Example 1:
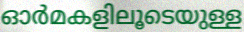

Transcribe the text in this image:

ഓർമകളിലൂടെയുള്ള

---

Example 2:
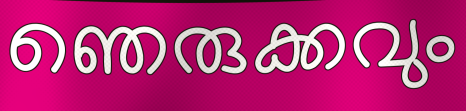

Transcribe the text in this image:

ഞെരുക്കവും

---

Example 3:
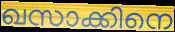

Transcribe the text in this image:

ഖസാക്കിനെ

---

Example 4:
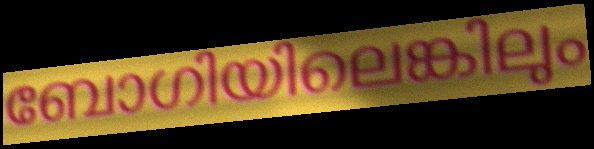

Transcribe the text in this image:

ബോഗിയിലെങ്കിലും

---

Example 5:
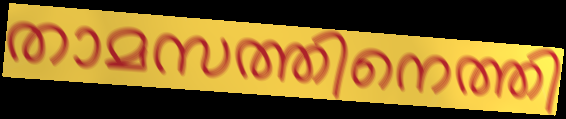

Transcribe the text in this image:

താമസത്തിനെത്തി